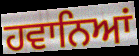
ਹਵਾਨਿਆਂ